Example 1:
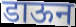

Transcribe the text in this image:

डाऊन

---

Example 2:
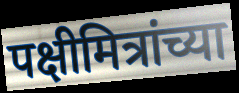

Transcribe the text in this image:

पक्षीमित्रांच्या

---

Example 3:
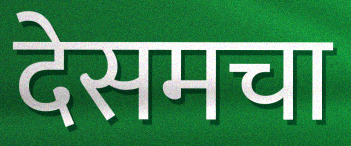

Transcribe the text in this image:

देसमचा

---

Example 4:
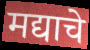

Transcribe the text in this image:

मद्याचे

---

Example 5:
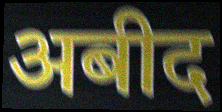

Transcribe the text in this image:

अबीद